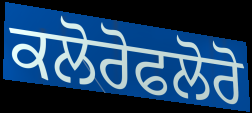
ਕਲੋਰੋਫਲੋਰੋ